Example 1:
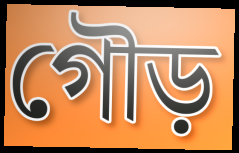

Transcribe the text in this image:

গৌড়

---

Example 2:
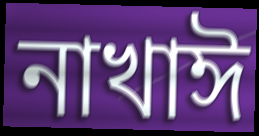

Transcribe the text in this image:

নাখাঈ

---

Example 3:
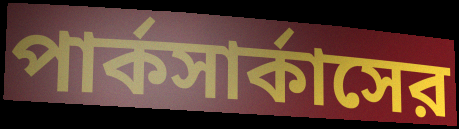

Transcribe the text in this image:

পার্কসার্কাসের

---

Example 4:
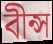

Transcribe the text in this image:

বীন্স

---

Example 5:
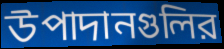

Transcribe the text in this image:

উপাদানগুলির